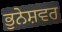
ਭੁਨੇਸ਼ਵਰ